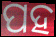
ପହ